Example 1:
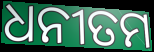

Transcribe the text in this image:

ଧନୀତମ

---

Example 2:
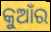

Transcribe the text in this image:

କୁଆଁର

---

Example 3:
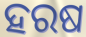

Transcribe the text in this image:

ହରଷ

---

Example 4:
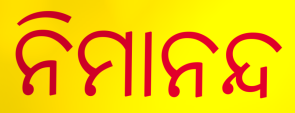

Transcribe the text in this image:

ନିମାନନ୍ଦ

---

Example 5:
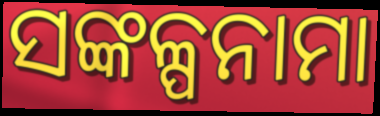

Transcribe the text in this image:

ସଙ୍କଳ୍ପନାମା